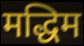
मद्धिम